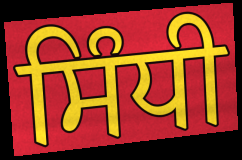
ਸਿੰਧੀ